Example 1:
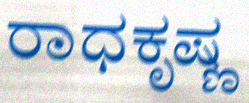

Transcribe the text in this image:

ರಾಧಕೃಷ್ಣ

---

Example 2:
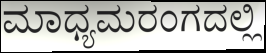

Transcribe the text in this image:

ಮಾಧ್ಯಮರಂಗದಲ್ಲಿ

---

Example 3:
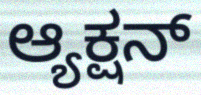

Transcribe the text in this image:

ಆ್ಯಕ್ಷನ್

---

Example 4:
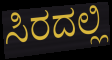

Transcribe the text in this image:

ಸಿರದಲ್ಲಿ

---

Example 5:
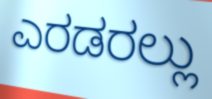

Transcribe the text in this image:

ಎರಡರಲ್ಲು